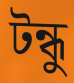
টন্ধু